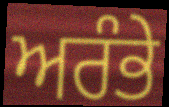
ਅਰੰਭੇ